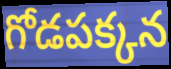
గోడపక్కన